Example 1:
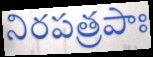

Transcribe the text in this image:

నిరపత్రపాః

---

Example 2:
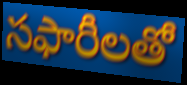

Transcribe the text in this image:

సఫారీలతో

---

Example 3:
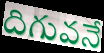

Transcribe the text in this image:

దిగువనే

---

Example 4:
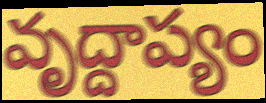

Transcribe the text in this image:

వృద్దాప్యం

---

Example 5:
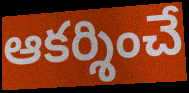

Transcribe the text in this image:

ఆకర్శించే